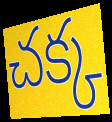
చక్క